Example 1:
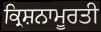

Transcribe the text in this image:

ਕ੍ਰਿਸ਼ਨਾਮੂਰਤੀ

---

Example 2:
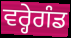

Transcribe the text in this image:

ਵਰ੍ਹੇਗੰਡ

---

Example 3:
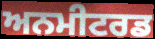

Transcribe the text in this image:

ਅਨਮੀਟਰਡ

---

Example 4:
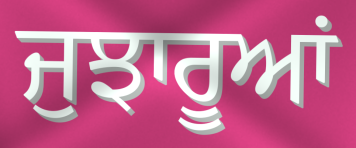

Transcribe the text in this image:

ਜੁਝਾਰੂਆਂ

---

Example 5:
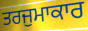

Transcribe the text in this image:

ਤਰਜੁਮਾਕਾਰ